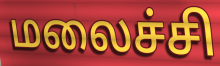
மலைச்சி